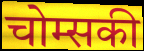
चोम्सकी